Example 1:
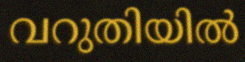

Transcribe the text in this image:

വറുതിയിൽ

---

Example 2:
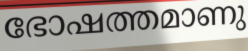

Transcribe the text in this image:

ഭോഷത്തമാണു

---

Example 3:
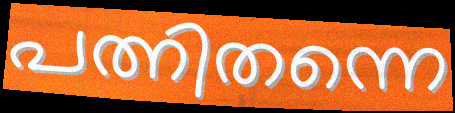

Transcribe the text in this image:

പത്നിതന്നെ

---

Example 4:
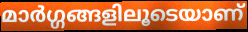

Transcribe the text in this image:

മാർഗ്ഗങ്ങളിലൂടെയാണ്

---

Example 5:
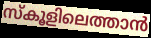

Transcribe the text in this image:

സ്കൂളിലെത്താൻ